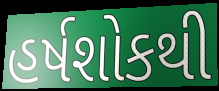
હર્ષશોકથી